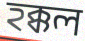
হক্কল